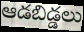
ఆడబిడ్డలు